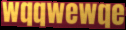
wqqwewqe